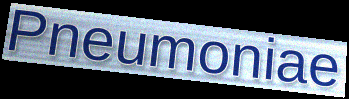
Pneumoniae